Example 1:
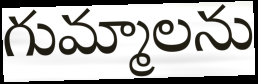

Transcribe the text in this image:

గుమ్మాలను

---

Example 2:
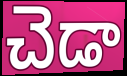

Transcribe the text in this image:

చెడా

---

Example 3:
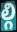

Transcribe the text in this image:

ల్గి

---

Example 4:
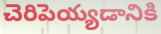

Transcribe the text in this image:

చెరిపెయ్యడానికి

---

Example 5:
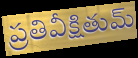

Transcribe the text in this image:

ప్రతివీక్షితుమ్